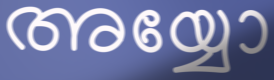
അയ്യോ